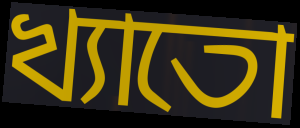
খ্যাতো